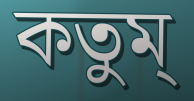
কতুম্